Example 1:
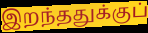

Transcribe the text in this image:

இறந்ததுக்குப்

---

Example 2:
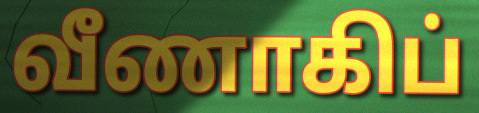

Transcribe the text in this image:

வீணாகிப்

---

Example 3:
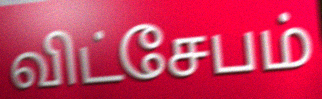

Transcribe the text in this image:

விட்சேபம்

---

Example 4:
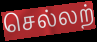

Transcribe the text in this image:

செல்லற்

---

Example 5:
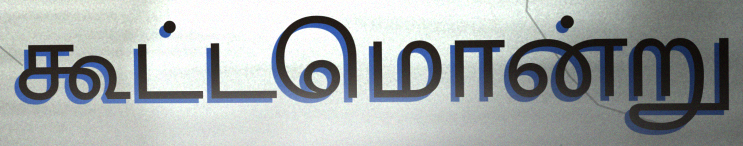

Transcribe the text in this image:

கூட்டமொன்று